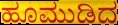
ಹೂಮುಡಿದ